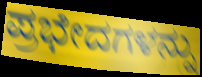
ಪ್ರಭೇದಗಳನ್ನು